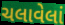
ચલાવેલાં